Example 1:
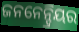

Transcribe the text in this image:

ଜନନେନ୍ଦ୍ରିୟର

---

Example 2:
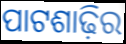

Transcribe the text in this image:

ପାଟଶାଢ଼ିର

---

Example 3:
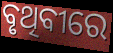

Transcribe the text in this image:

ବୃଥିବୀରେ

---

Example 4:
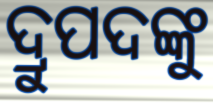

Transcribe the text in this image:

ଦ୍ରୁପଦଙ୍କୁ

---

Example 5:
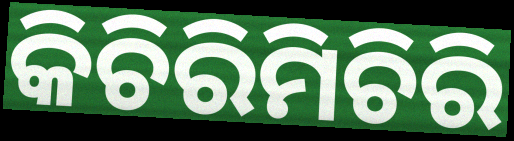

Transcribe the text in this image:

କିଚିରିମିଚିରି